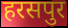
हरसपुर